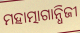
ମହାତ୍ମାଗାନ୍ଧିଜୀ